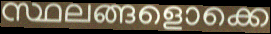
സ്ഥലങ്ങളൊക്കെ